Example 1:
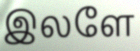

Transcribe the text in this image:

இலளே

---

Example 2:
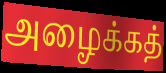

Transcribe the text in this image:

அழைக்கத்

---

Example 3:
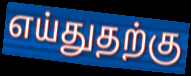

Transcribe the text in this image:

எய்துதற்கு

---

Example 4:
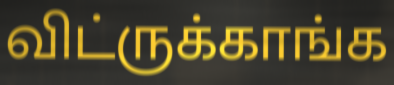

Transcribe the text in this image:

விட்ருக்காங்க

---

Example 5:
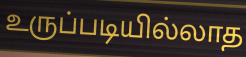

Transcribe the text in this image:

உருப்படியில்லாத